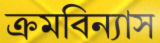
ক্ৰমবিন্যাস